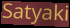
Satyaki